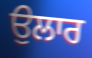
ਉਲਾਰ